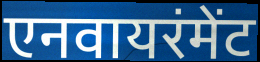
एनवायरंमेंट